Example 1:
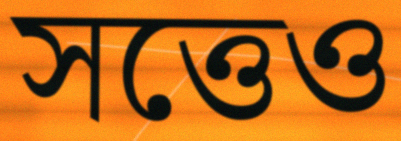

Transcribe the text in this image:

সত্তেও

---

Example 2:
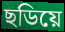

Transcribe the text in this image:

ছডিয়ে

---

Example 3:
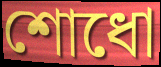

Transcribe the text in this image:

শোধো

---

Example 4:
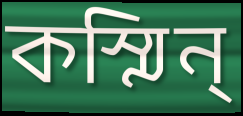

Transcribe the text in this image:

কস্মিন্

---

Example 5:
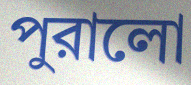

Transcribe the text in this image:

পুরালো